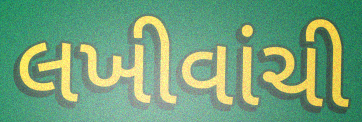
લખીવાંચી